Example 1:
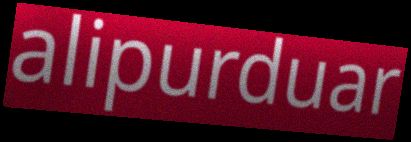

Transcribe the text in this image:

alipurduar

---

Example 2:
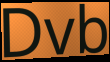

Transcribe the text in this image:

Dvb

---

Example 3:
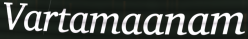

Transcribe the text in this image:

Vartamaanam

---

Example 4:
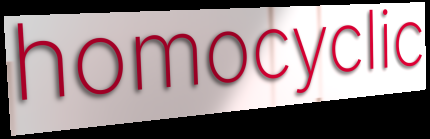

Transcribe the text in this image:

homocyclic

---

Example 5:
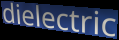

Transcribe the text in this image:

dielectric